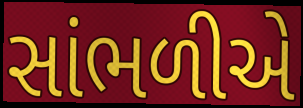
સાંભળીએ